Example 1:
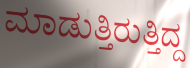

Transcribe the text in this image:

ಮಾಡುತ್ತಿರುತ್ತಿದ್ದ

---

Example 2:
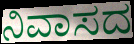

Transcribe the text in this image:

ನಿವಾಸದ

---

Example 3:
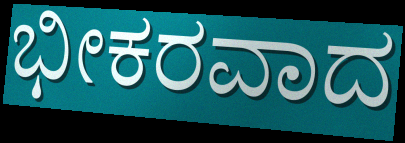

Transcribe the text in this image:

ಭೀಕರವಾದ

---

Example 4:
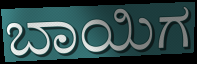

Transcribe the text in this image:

ಬಾಯಿಗ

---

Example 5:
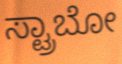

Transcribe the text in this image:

ಸ್ಟ್ರಾಬೋ